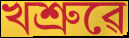
খশ্ৰুৱে